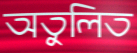
অতুলিত